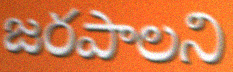
జరపాలని